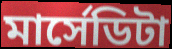
মার্সেডিটা